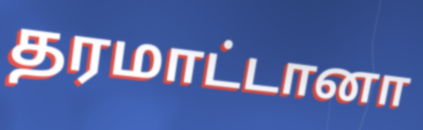
தரமாட்டானா